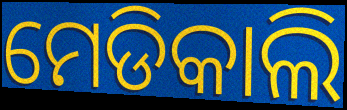
ମେଡିକାଲି